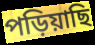
পড়িয়াছি